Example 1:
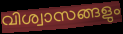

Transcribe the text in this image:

വിശ്വാസങ്ങളും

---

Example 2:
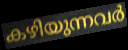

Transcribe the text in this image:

കഴിയുന്നവർ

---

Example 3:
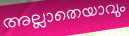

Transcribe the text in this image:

അല്ലാതെയാവും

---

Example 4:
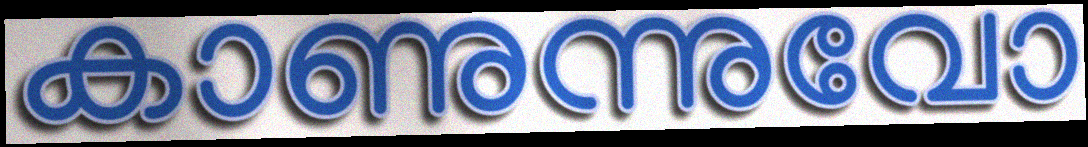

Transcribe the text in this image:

കാണുന്നുവോ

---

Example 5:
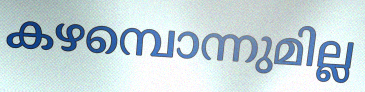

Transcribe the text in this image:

കഴമ്പൊന്നുമില്ല